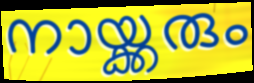
നായ്ക്കരും